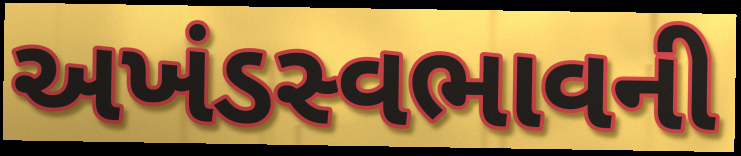
અખંડસ્વભાવની